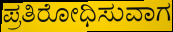
ಪ್ರತಿರೋಧಿಸುವಾಗ